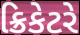
ક્રિકેટરે